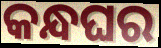
କନ୍ଧଘର